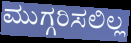
ಮುಗ್ಗರಿಸಲಿಲ್ಲ